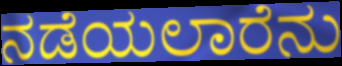
ನಡೆಯಲಾರೆನು